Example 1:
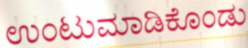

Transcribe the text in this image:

ಉಂಟುಮಾಡಿಕೊಂಡು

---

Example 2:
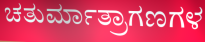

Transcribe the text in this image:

ಚತುರ್ಮಾತ್ರಾಗಣಗಳ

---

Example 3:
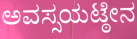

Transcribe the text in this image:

ಅವಸ್ಸಯಟ್ಠೇನ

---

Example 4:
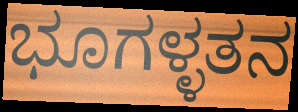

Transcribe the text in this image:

ಭೂಗಳ್ಳತನ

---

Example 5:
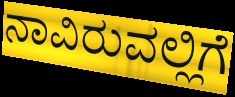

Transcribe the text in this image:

ನಾವಿರುವಲ್ಲಿಗೆ